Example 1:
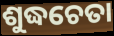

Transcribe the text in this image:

ଶୁଦ୍ଧଚେତା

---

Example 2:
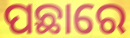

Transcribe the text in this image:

ପଛାରେ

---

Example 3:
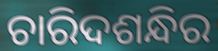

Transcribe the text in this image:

ଚାରିଦଶନ୍ଧିର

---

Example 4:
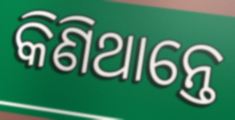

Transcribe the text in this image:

କିଣିଥାନ୍ତେ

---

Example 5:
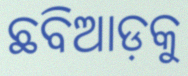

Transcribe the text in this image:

ଛବିଆଡ଼କୁ